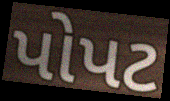
પોપટ